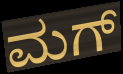
ಮಗ್